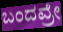
ಬಂದವ್ರೇ